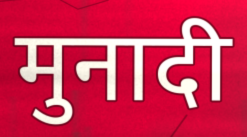
मुनादी